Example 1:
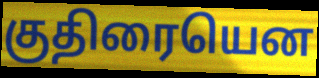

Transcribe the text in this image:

குதிரையென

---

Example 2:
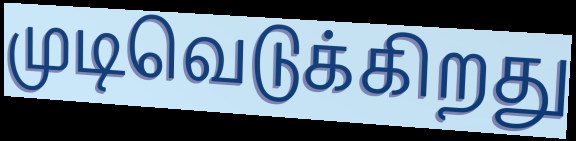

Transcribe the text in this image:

முடிவெடுக்கிறது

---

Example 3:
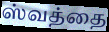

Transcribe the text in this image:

ஸ்வத்தை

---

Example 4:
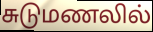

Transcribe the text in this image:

சுடுமணலில்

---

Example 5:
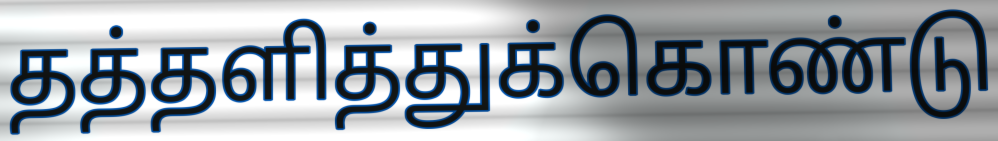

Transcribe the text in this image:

தத்தளித்துக்கொண்டு